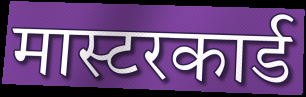
मास्टरकार्ड